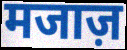
मजाज़